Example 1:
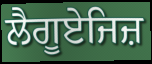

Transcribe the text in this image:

ਲੈਗੂਏਜਿਜ਼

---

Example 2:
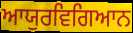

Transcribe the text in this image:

ਆਯੁਰਵਿਗਿਆਨ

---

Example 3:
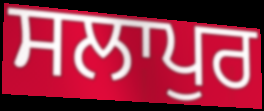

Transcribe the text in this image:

ਸਲਾਪੁਰ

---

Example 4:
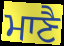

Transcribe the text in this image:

ਮਾਣੈ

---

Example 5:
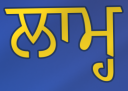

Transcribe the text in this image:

ਲਾਮ੍ਹ